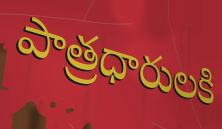
పాత్రధారులకి